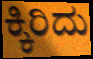
ಕ್ಕಿರಿದು